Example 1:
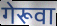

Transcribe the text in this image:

गेरूवा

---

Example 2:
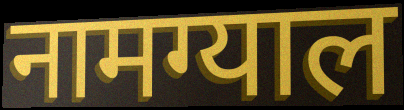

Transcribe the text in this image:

नामग्याल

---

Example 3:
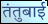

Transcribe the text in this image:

तंतुबाई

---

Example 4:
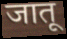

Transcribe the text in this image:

जातू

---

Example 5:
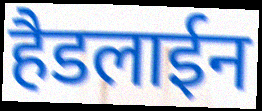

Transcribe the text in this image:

हैडलाईन